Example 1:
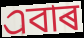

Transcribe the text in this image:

এবাৰ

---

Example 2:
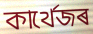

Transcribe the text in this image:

কাৰ্থেজৰ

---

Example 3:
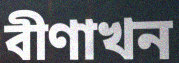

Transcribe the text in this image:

বীণাখন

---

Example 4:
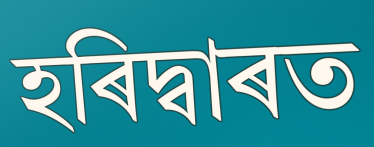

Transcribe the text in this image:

হৰিদ্বাৰত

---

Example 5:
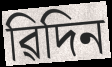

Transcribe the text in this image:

ৱিদিন